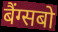
बैंग्सबो